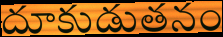
దూకుడుతనం